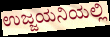
ಉಜ್ಜಯನಿಯಲ್ಲಿ